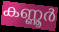
കണ്ണൂർ